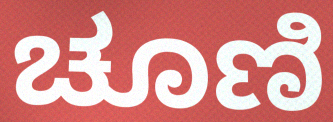
ಚೂಣಿ